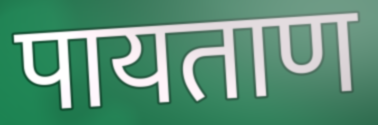
पायताण